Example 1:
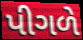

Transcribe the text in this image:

પીગળે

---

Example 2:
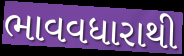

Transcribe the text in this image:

ભાવવધારાથી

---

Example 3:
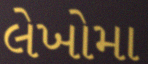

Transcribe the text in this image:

લેખોમા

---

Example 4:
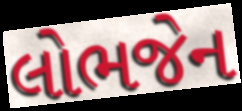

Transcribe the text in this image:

લોભજેન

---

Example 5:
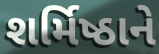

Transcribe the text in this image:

શર્મિષ્ઠાને